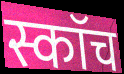
स्कॉच